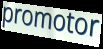
promotor